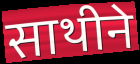
साथीने